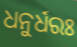
ଧନୁର୍ଧରଃ